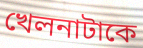
খেলনাটাকে